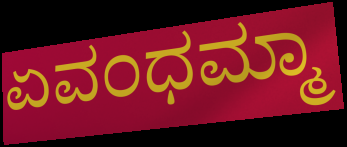
ಏವಂಧಮ್ಮಾ